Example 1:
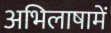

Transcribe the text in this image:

अभिलाषामें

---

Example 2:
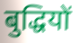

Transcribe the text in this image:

बुद्धियों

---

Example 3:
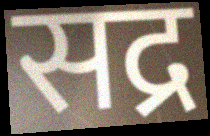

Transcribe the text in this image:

सद्र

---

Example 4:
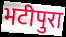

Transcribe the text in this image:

भटीपुरा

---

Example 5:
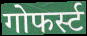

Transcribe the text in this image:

गोफर्स्ट